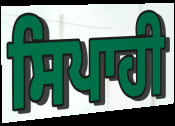
ਸਿਪਾਹੀ